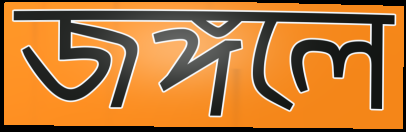
জঙ্গলে